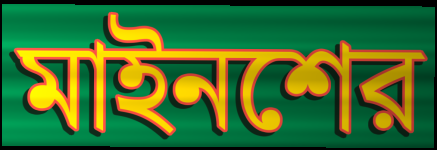
মাইনশের